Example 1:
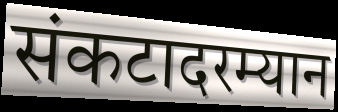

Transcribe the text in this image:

संकटादरम्यान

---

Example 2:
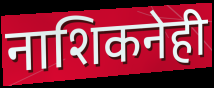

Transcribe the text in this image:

नाशिकनेही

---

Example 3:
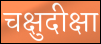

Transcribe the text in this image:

चक्षुदीक्षा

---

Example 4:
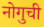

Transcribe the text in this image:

नोगुची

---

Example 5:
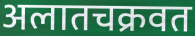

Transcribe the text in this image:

अलातचक्रवत